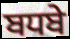
ਬਧਬੇ